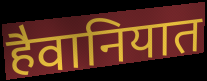
हैवानियात